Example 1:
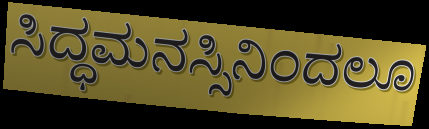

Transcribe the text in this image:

ಸಿದ್ಧಮನಸ್ಸಿನಿಂದಲೂ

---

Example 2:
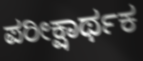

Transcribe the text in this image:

ಪರೀಕ್ಷಾರ್ಥಕ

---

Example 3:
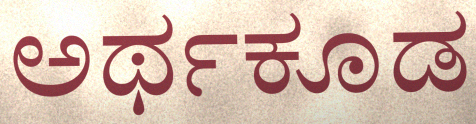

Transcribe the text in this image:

ಅರ್ಥಕೂಡ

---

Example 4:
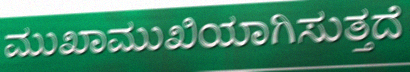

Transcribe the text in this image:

ಮುಖಾಮುಖಿಯಾಗಿಸುತ್ತದೆ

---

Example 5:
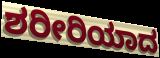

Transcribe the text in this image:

ಶರೀರಿಯಾದ